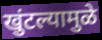
खुंटल्यामुळे